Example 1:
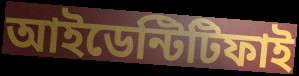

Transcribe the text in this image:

আইডেন্টিটিফাই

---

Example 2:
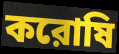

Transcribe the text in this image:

করোষি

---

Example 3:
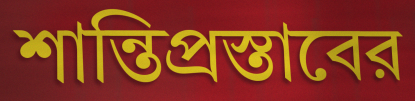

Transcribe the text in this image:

শান্তিপ্রস্তাবের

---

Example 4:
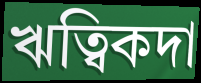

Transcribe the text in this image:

ঋত্বিকদা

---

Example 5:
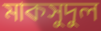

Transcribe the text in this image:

মাকসুদুল